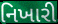
નિખારી